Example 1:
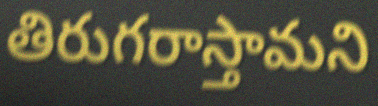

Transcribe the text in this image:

తిరుగరాస్తామని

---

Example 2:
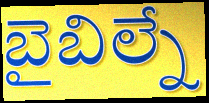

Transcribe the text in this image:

బైబిల్నే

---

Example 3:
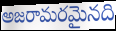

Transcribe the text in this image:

అజరామరమైనది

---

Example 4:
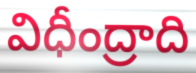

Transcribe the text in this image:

విధీంద్రాది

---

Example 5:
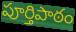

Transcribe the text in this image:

పూర్తిపాఠం